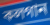
কলগান